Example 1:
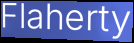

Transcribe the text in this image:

Flaherty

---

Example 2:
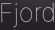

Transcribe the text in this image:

Fjord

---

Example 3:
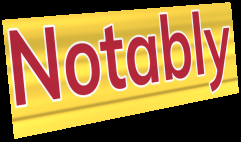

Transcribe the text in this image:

Notably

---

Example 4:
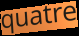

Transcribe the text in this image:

quatre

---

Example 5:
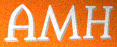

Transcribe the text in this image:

AMH